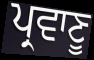
ਪ੍ਰਵਾਣੂ